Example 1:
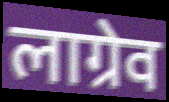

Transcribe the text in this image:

लाग्रेव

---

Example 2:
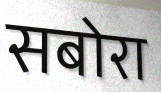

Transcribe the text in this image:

सबोरा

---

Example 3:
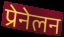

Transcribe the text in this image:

प्रेनेलन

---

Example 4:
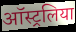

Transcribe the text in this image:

ऑस्ट्रलिया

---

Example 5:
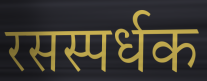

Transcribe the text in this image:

रसस्पर्धक